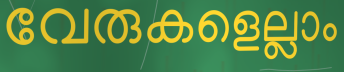
വേരുകളെല്ലാം